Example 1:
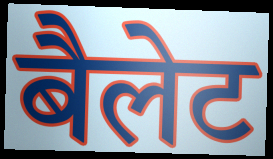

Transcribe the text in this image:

बैलेट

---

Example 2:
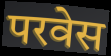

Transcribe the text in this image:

परवेस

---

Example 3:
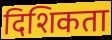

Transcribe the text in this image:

दिशिकता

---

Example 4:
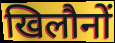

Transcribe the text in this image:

खिलौनों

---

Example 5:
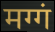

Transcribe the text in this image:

मग्गं